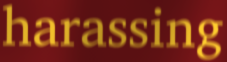
harassing